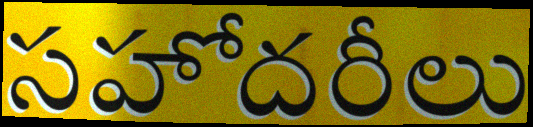
సహోదరీలు